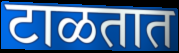
टाळतात